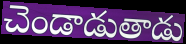
చెండాడుతాడు